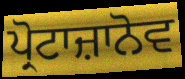
ਪ੍ਰੋਟਾਜ਼ਾਨੋਵ